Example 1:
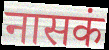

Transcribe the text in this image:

नासकं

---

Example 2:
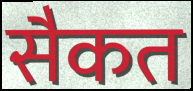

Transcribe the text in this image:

सैकत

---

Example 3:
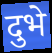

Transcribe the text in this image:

दुभे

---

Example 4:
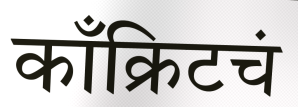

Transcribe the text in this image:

काँक्रिटचं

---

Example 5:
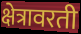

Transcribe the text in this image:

क्षेत्रावरती